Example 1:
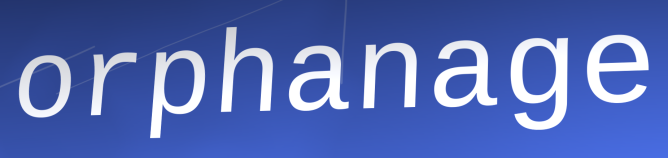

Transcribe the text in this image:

orphanage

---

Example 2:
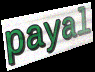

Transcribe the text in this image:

payal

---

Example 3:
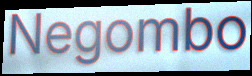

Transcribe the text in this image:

Negombo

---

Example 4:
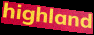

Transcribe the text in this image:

highland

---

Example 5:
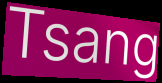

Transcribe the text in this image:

Tsang